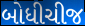
બોધીચીજ